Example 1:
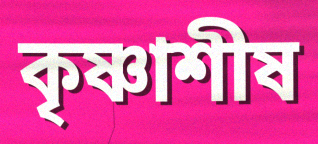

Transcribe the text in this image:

কৃষ্ণাশীষ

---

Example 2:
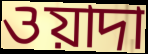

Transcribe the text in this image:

ওয়াদা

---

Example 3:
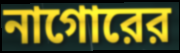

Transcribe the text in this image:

নাগোরের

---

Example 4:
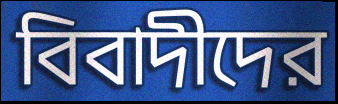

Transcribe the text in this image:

বিবাদীদের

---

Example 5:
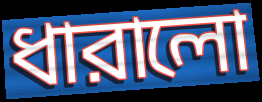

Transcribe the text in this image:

ধারালো